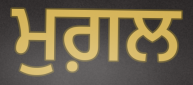
ਮੁਗ਼ਲ